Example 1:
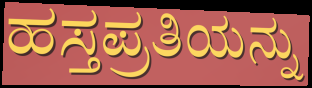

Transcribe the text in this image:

ಹಸ್ತಪ್ರತಿಯನ್ನು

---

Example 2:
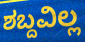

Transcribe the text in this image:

ಶಬ್ದವಿಲ್ಲ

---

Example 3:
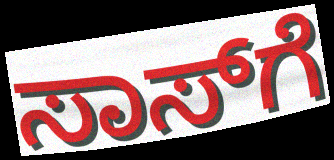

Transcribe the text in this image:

ಸಾಸ್‌ಗೆ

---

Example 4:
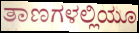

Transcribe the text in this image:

ತಾಣಗಳಲ್ಲಿಯೂ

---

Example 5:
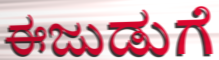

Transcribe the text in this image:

ಈಜುಡುಗೆ